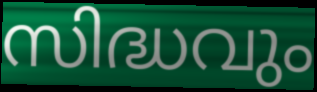
സിദ്ധവും